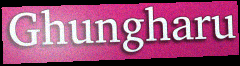
Ghungharu